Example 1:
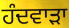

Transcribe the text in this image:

ਹੰਦਵਾੜਾ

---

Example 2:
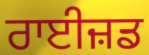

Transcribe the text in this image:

ਰਾਈਜ਼ਡ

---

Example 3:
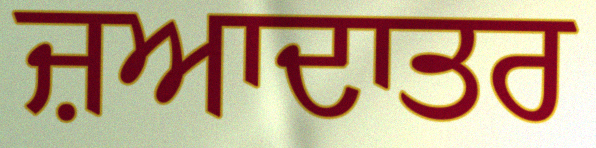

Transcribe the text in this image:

ਜ਼ਆਦਾਤਰ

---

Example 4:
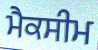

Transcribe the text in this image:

ਮੈਕਸੀਮ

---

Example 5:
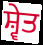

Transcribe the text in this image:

ਸ਼੍ਵੇਤ